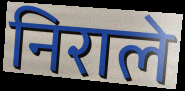
निराले